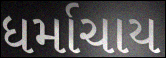
ધર્માચાય